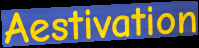
Aestivation